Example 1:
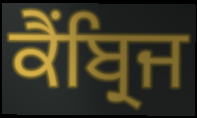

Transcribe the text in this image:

ਕੈਂਬ੍ਰਿਜ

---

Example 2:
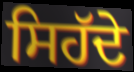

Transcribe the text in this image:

ਸਿਹੱਦੇ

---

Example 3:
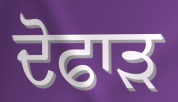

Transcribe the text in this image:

ਦੋਫਾੜ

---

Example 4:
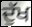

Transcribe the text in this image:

ਦੁੱਖ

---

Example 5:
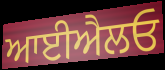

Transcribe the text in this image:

ਆਈਐਲਓ